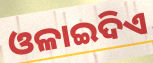
ଓଳାଇଦିଏ